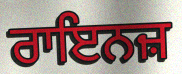
ਰਾਇਨਜ਼